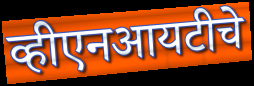
व्हीएनआयटीचे